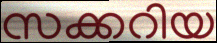
സക്കറിയ